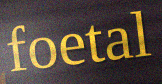
foetal